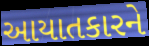
આયાતકારને